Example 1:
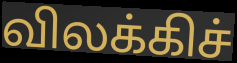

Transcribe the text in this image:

விலக்கிச்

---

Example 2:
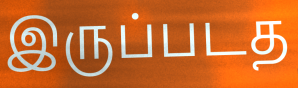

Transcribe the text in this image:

இருப்படத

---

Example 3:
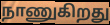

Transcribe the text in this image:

நாணுகிறது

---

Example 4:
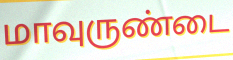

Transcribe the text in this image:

மாவுருண்டை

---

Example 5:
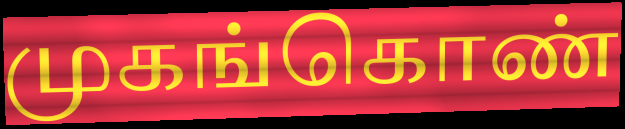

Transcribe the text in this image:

முகங்கொண்